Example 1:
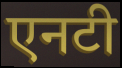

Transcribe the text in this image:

एनटी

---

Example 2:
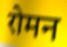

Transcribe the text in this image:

रोमन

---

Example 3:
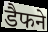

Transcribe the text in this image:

डैफने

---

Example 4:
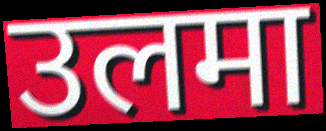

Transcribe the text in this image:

उलमा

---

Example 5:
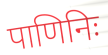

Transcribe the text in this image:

पाणिनिः